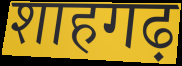
शाहगढ़